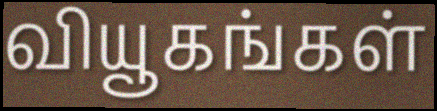
வியூகங்கள்